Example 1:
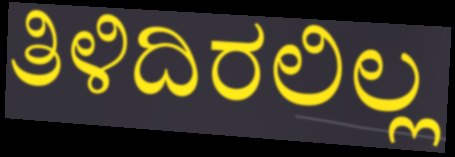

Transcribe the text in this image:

ತಿಳಿದಿರಲಿಲ್ಲ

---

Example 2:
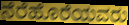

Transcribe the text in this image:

ನೆರೆಹೊರೆಯವರು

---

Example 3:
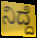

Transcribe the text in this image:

ನಿದ್ದೆ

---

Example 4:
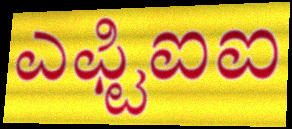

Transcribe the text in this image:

ಎಫ್ಟಿಐಐ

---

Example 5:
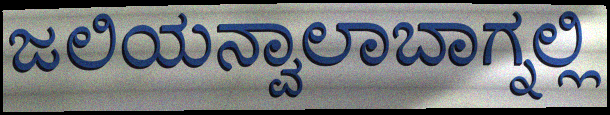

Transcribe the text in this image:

ಜಲಿಯನ್ವಾಲಾಬಾಗ್ನಲ್ಲಿ